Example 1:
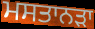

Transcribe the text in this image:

ਮਸਤਾਨੜਾ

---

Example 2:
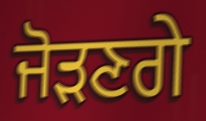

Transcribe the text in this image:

ਜੋੜਣਗੇ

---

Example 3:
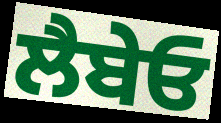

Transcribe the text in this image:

ਲੈਬੇਓ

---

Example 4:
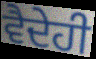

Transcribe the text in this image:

ਵੈਦੇਹੀ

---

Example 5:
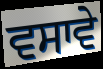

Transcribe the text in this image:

ਵਸਾਵੇ